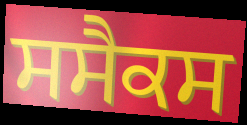
ਸਸੈਕਸ